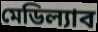
মেডিল্যাব